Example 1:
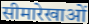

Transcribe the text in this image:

सीमारेखाओं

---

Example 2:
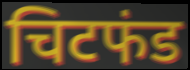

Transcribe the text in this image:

चिटफंड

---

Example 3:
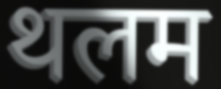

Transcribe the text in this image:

थलम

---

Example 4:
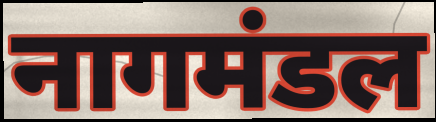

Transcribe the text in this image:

नागमंडल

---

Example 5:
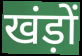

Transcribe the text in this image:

खंड़ों